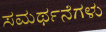
ಸಮರ್ಥನೆಗಳು